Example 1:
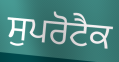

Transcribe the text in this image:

ਸੁਪਰੋਟੈਕ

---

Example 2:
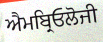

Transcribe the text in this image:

ਐਮਬ੍ਰਿਓਲੋਜੀ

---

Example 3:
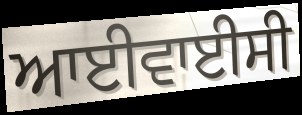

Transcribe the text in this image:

ਆਈਵਾਈਸੀ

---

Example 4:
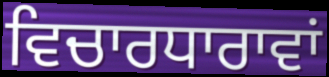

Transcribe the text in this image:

ਵਿਚਾਰਧਾਰਾਵਾਂ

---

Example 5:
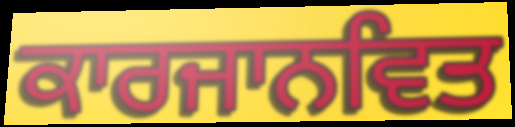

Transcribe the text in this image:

ਕਾਰਜਾਨਵਿਤ